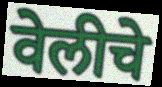
वेलीचे